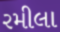
રમીલા